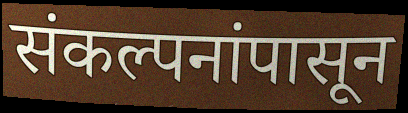
संकल्पनांपासून